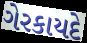
ગેરકાયદે